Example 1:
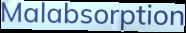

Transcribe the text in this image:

Malabsorption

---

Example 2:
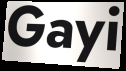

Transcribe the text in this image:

Gayi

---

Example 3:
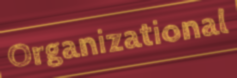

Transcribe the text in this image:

Organizational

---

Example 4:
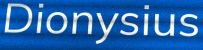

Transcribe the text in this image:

Dionysius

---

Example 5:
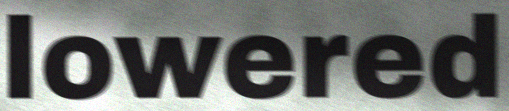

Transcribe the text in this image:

lowered